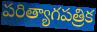
పరిత్యాగపత్రిక